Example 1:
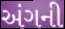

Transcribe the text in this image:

અંગની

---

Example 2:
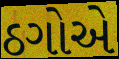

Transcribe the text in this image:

ઠગોએ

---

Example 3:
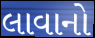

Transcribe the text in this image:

લાવાનો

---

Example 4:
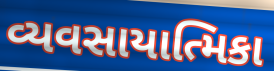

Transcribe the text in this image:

વ્યવસાયાત્મિકા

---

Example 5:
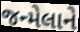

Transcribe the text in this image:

જન્મેલાને